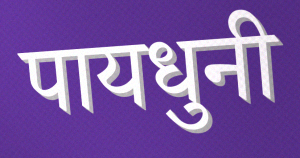
पायधुनी